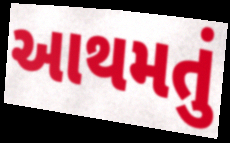
આથમતું